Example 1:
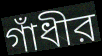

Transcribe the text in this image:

গাঁধীর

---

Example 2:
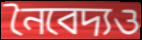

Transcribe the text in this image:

নৈবেদ্যও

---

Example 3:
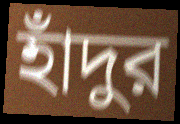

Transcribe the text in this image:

হাঁদুর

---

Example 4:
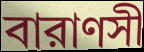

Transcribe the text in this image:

বারাণসী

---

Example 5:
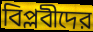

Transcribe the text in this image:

বিপ্লবীদের